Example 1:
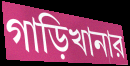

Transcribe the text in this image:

গাড়িখানার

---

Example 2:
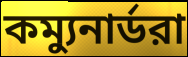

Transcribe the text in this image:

কম্যুনার্ডরা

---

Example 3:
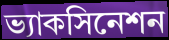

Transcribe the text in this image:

ভ্যাকসিনেশন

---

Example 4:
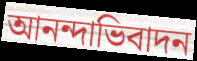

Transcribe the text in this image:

আনন্দাভিবাদন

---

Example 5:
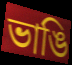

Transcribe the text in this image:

ভাঙি